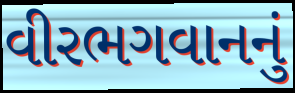
વીરભગવાનનું